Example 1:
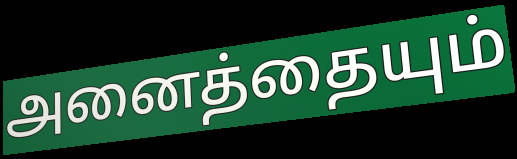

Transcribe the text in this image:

அனைத்தையும்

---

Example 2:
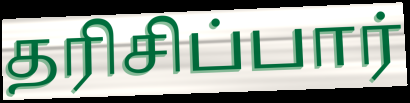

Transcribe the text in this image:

தரிசிப்பார்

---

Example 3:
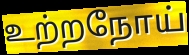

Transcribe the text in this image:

உற்றநோய்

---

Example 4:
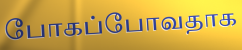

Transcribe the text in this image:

போகப்போவதாக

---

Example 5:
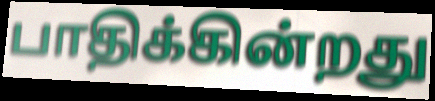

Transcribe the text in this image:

பாதிக்கின்றது